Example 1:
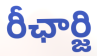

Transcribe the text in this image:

రీఛార్జి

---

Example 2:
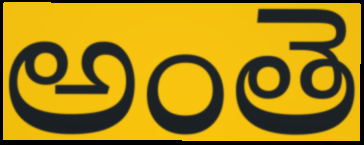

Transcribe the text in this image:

అంతె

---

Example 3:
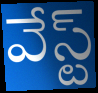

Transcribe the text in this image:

వేస్ట్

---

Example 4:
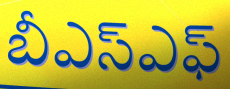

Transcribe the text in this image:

బీఎస్ఎఫ్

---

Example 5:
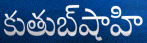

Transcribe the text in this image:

కుతుబ్‌షాహి